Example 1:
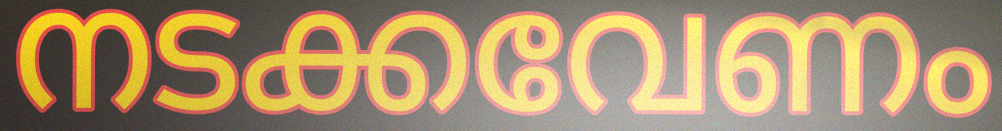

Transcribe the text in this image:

നടക്കവേണം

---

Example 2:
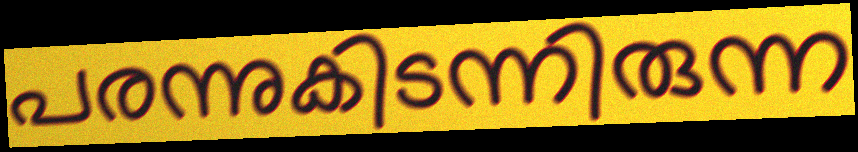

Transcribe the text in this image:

പരന്നുകിടന്നിരുന്ന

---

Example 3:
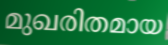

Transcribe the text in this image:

മുഖരിതമായ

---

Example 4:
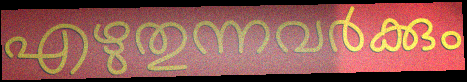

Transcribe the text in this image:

എഴുതുന്നവർക്കും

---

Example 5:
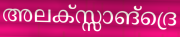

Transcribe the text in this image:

അലക്സ്സാങ്ദ്രെ